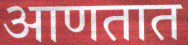
आणतात